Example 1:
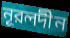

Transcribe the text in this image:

নূরলদীন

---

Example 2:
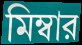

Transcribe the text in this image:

মিম্বার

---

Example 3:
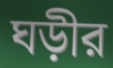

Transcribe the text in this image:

ঘড়ীর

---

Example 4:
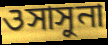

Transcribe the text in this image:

ওসাসুনা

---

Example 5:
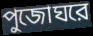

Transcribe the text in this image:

পুজোঘরে